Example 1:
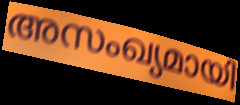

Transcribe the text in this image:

അസംഖ്യമായി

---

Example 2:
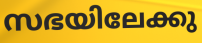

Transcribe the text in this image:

സഭയിലേക്കു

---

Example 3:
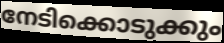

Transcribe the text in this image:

നേടിക്കൊടുക്കും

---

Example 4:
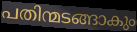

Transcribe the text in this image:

പതിന്മടങ്ങാകും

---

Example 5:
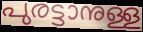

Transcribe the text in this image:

പുരട്ടാനുള്ള